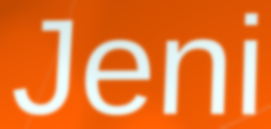
Jeni